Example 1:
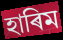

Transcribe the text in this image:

হাৰিম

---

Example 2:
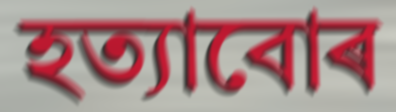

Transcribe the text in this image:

হত্যাবোৰ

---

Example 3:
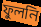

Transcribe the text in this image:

ফুলনি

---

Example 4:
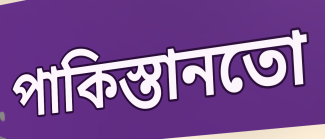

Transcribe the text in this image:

পাকিস্তানতো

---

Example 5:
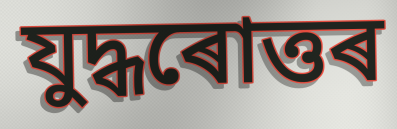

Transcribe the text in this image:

যুদ্ধৰোত্তৰ